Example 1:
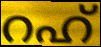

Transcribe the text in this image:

റഹ്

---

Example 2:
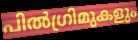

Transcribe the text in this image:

പിൽഗ്രിമുകളും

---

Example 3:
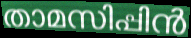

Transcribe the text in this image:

താമസിപ്പിൻ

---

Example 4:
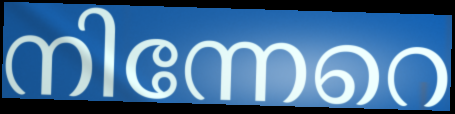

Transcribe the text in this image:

നിന്നേറെ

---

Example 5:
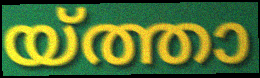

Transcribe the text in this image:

യ്ത്താ